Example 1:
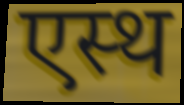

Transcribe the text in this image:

एस्थ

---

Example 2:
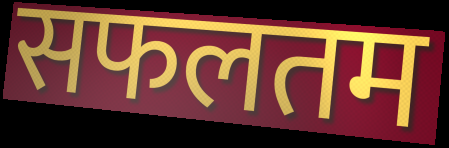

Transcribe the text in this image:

सफलतम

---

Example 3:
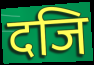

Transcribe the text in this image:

दजि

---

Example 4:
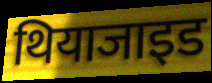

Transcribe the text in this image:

थियाजाइड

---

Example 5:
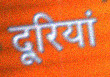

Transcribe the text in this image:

दूरियां